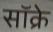
सॉक्रे